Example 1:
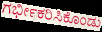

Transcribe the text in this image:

ಗರ್ಭೀಕರಿಸಿಕೊಂಡು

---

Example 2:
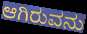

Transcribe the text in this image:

ಆಗಿರುವನು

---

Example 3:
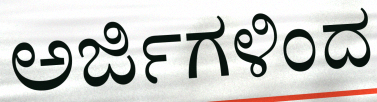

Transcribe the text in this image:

ಅರ್ಜಿಗಳಿಂದ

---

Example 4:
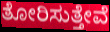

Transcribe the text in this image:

ತೋರಿಸುತ್ತೇವೆ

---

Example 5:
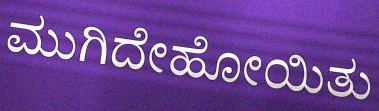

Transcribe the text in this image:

ಮುಗಿದೇಹೋಯಿತು